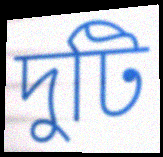
দুটি